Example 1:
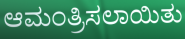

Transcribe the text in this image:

ಆಮಂತ್ರಿಸಲಾಯಿತು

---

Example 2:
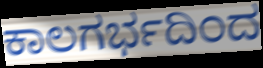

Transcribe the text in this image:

ಕಾಲಗರ್ಭದಿಂದ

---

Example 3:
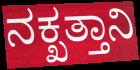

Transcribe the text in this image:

ನಕ್ಖತ್ತಾನಿ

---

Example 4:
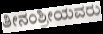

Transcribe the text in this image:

ತೀನಂಶ್ರೀಯವರು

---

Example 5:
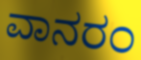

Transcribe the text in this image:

ವಾನರಂ